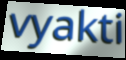
vyakti